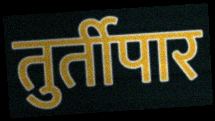
तुर्तीपार